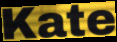
Kate